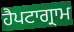
ਹੈਪਟਾਗ੍ਰਾਮ